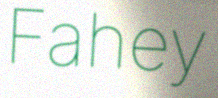
Fahey